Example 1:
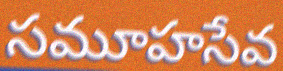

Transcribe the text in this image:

సమూహసేవ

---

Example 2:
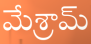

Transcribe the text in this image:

మేశ్రామ్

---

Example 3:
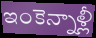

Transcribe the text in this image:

ఇంకెన్నాళ్లీ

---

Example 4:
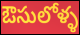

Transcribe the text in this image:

ఔసులోళ్ళ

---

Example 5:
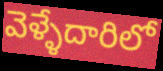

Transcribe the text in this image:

వెళ్ళేదారిలో